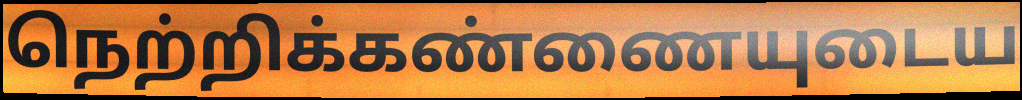
நெற்றிக்கண்ணையுடைய